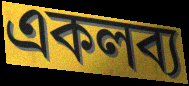
একলব্য